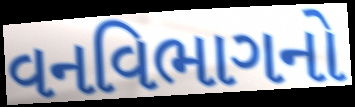
વનવિભાગનો